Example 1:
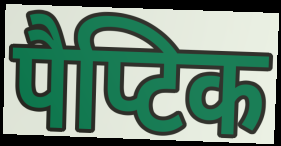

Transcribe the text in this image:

पैप्टिक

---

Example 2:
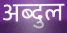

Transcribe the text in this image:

अब्दुल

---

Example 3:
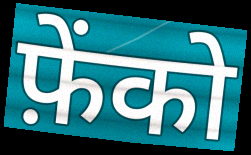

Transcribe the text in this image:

फ़ेंको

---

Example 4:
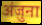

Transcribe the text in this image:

अंजुना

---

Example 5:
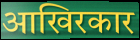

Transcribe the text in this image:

आखिरकार